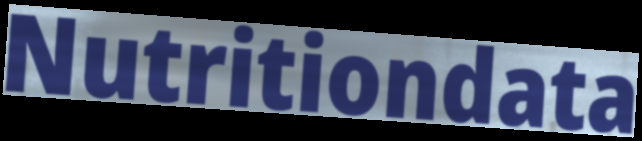
Nutritiondata